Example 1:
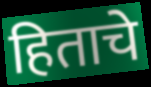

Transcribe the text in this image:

हिताचे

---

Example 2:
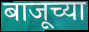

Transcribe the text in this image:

बाजूच्या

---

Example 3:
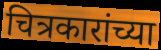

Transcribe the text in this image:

चित्रकारांच्या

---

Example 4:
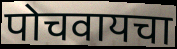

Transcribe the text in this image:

पोचवायचा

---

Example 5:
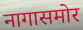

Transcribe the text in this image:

नागासमोर